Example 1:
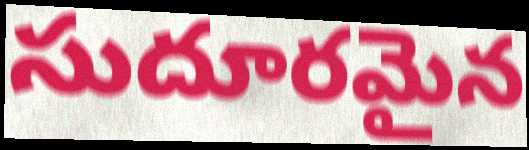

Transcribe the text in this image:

సుదూరమైన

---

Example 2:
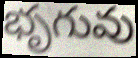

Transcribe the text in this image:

భృగువు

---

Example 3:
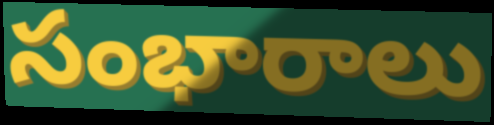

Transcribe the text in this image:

సంభారాలు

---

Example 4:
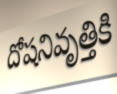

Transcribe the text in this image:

దోషనివృత్తికి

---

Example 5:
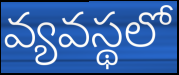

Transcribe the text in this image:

వ్యవస్థలో